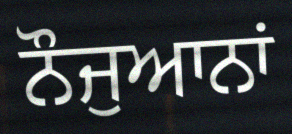
ਨੌਜੁਆਨਾਂ